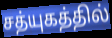
சத்யுகத்தில்